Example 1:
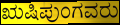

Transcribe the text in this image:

ಋಷಿಪುಂಗವರು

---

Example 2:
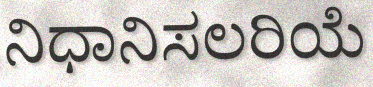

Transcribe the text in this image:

ನಿಧಾನಿಸಲರಿಯೆ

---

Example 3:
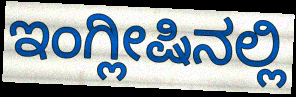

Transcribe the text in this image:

ಇಂಗ್ಲೀಷಿನಲ್ಲಿ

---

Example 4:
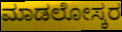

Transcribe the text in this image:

ಮಾಡಲೋಸ್ಕರ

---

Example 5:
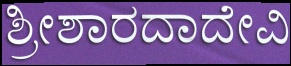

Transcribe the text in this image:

ಶ್ರೀಶಾರದಾದೇವಿ